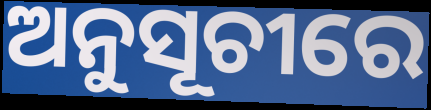
ଅନୁସୂଚୀରେ